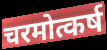
चरमोत्कर्ष